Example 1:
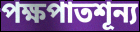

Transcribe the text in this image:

পক্ষপাতশূন্য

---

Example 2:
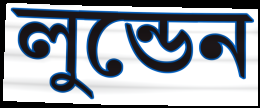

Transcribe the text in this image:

লুন্ডেন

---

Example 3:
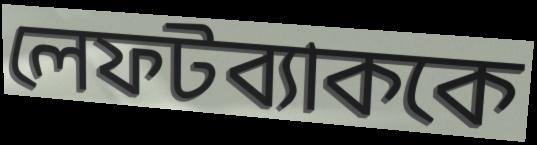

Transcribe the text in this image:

লেফটব্যাককে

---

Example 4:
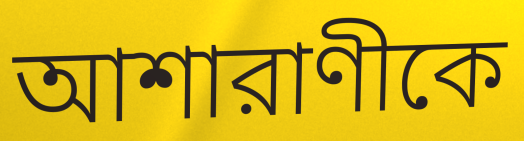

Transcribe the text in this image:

আশারাণীকে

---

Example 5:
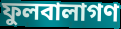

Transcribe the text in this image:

ফুলবালাগণ